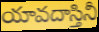
యావదాస్తినీ